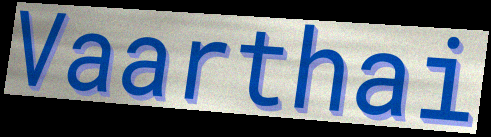
Vaarthai